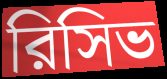
রিসিভ